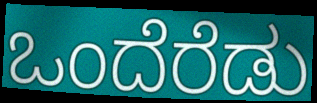
ಒಂದೆರೆಡು